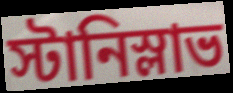
স্টানিস্লাভ